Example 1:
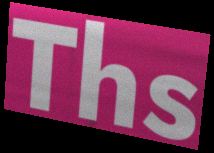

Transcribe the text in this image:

Ths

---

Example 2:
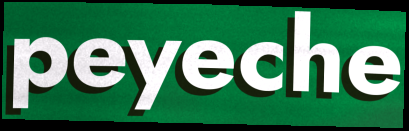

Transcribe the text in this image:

peyeche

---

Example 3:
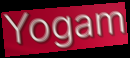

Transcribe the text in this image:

Yogam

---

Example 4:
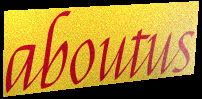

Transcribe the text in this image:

aboutus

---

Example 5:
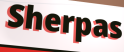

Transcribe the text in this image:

Sherpas